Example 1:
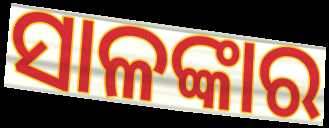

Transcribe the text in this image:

ସାଳଙ୍କାର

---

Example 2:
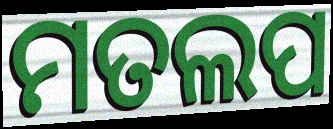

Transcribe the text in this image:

ମତଲପ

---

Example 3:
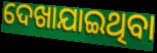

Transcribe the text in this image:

ଦେଖାଯାଇଥିବା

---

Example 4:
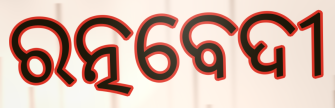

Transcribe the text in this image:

ରତ୍ନବେଦୀ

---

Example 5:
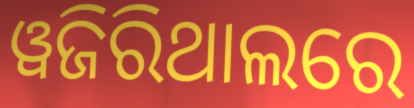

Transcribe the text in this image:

ୱଜିରିଥାଲରେ